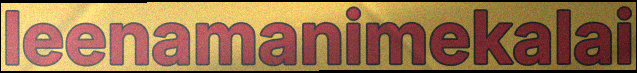
leenamanimekalai